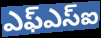
ఎఫ్ఎస్ఐ